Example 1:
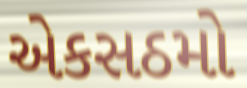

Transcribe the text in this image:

એકસઠમો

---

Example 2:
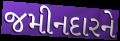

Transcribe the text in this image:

જમીનદારને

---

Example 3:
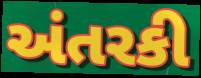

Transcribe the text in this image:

અંતરકી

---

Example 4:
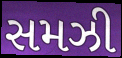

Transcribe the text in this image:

સમઝી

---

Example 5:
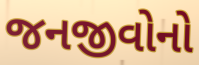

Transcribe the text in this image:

જનજીવોનો